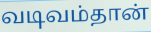
வடிவம்தான்